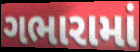
ગભારામાં